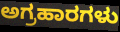
ಅಗ್ರಹಾರಗಳು